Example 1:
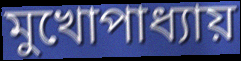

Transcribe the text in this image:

মুখোপাধ্যায়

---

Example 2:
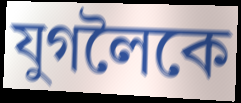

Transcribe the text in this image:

যুগলৈকে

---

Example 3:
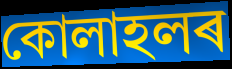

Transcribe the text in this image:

কোলাহলৰ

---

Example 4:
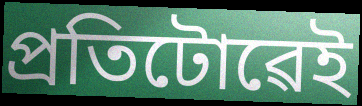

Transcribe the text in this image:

প্ৰতিটোৱেই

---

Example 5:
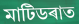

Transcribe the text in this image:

মাটিডৰাত